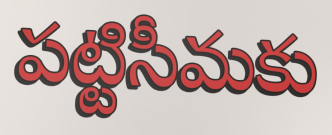
పట్టిసీమకు